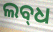
ଲବ୍‌ଧ